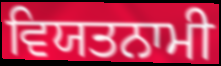
ਵਿਯਤਨਾਮੀ